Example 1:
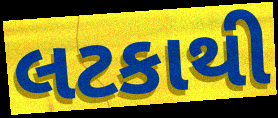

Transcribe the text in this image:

લટકાથી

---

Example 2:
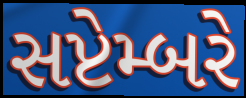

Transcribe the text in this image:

સપ્ટેમ્બરે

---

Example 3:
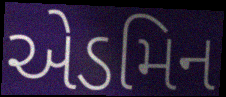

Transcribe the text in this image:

એડમિન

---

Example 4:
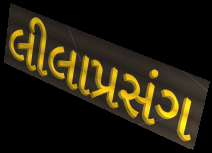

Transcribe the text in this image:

લીલાપ્રસંગ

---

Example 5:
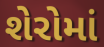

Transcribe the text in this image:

શેરોમાં